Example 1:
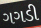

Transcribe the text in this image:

ગગડી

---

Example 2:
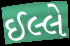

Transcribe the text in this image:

ઈલ્લે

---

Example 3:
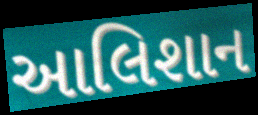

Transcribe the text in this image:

આલિશાન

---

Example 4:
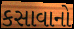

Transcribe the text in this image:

કસાવાનો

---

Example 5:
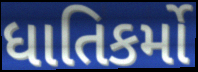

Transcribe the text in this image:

ધાતિકર્મો